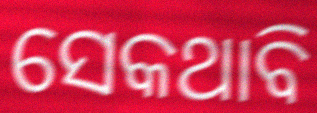
ସେକଥାବି